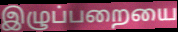
இழுப்பறையை